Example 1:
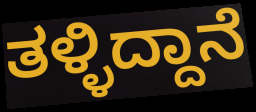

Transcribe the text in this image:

ತಳ್ಳಿದ್ದಾನೆ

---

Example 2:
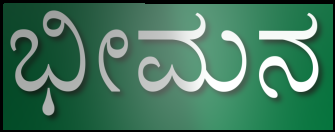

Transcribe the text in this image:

ಭೀಮನ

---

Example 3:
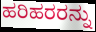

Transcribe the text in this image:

ಹರಿಹರರನ್ನು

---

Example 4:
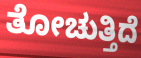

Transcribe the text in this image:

ತೋಚುತ್ತಿದೆ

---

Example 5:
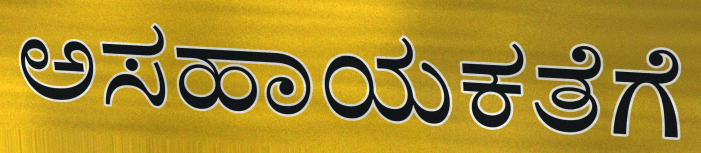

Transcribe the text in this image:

ಅಸಹಾಯಕತೆಗೆ